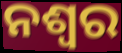
ନଶ୍ଵର